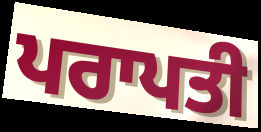
ਪਰਾਪਤੀ